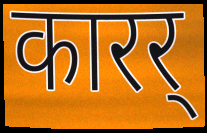
कारर्